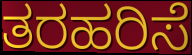
ತರಹರಿಸೆ